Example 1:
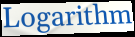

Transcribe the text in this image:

Logarithm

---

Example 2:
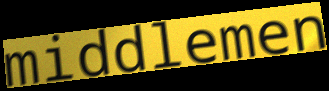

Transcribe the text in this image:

middlemen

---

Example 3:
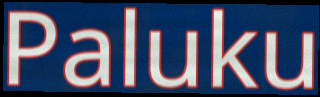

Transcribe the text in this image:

Paluku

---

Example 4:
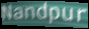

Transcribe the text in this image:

Nandpur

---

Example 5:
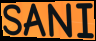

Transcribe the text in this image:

SANI